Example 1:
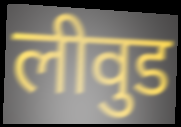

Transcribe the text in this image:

लीवुड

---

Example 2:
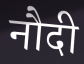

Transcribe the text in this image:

नौदी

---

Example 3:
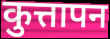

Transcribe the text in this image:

कुत्तापन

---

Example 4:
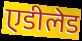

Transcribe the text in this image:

एडीलेड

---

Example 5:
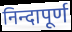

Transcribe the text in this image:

निन्दापूर्ण